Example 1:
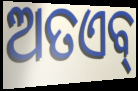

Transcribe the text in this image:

ଅତଏବ୍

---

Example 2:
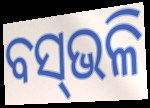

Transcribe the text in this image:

ବସ୍‌ଭଳି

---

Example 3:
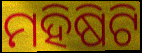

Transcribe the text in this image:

ମହିଷିଟି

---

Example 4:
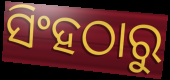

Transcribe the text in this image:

ସିଂହଠାରୁ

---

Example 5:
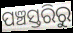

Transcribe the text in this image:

ପଞ୍ଚସ୍ତରିରୁ